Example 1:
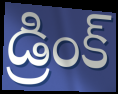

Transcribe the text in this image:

డ్రింక్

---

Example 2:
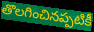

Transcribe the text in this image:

తొలగించినప్పటికీ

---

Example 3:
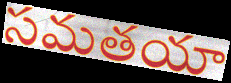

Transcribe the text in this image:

సమతయా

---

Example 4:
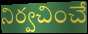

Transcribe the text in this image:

నిర్వచించే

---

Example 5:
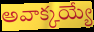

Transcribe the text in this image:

అవాక్కయ్యే